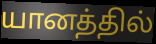
யானத்தில்